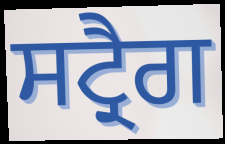
ਸਟ੍ਰੈਗ